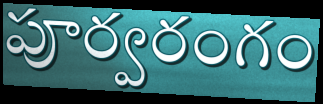
పూర్వరంగం